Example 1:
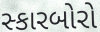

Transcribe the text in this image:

સ્કારબોરો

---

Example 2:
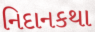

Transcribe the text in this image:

નિદાનકથા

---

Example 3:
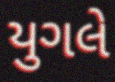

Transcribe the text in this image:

યુગલે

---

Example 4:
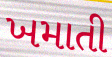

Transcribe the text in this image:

ખમાતી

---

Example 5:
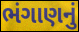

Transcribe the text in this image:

ભંગાણનું